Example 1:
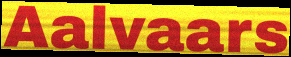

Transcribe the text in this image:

Aalvaars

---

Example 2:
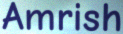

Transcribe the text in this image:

Amrish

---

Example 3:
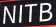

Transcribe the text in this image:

NITB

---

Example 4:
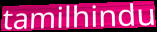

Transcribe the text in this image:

tamilhindu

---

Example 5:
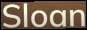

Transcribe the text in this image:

Sloan